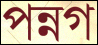
পন্নগ